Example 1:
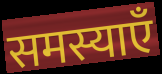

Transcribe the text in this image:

समस्याएँ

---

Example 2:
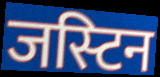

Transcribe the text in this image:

जस्‍टिन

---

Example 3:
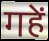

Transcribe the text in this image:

गहें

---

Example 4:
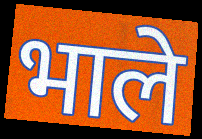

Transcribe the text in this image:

भाले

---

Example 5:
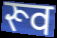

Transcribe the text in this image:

रूव